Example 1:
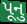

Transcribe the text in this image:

પૂનુ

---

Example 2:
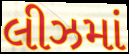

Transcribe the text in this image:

લીઝમાં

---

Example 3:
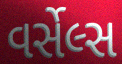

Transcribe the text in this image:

વર્સેલ્સ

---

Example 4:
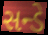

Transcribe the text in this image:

સન્ડે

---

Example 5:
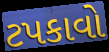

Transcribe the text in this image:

ટપકાવો